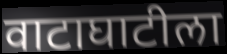
वाटाघाटीला